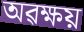
অৱক্ষয়